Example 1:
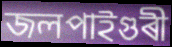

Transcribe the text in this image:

জলপাইগুৰী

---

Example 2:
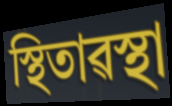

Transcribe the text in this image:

স্থিতাৱস্থা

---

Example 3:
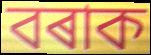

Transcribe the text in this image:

বৰাক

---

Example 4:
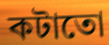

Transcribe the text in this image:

কটাতো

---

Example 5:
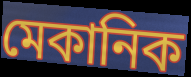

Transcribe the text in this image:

মেকানিক